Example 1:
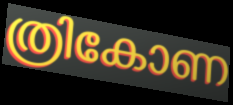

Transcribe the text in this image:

ത്രികോണ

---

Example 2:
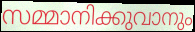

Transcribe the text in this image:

സമ്മാനിക്കുവാനും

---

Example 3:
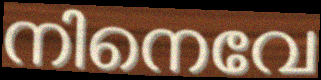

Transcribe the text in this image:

നിനെവേ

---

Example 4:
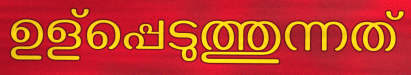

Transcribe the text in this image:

ഉള്പ്പെടുത്തുന്നത്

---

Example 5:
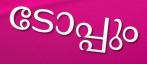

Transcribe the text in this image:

ടോപ്പും